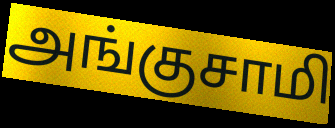
அங்குசாமி